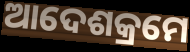
ଆଦେଶକ୍ରମେ